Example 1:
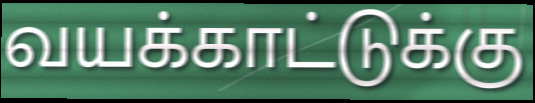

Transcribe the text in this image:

வயக்காட்டுக்கு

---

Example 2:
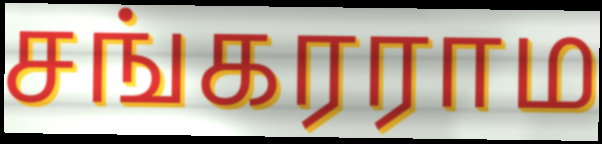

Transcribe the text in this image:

சங்கரராம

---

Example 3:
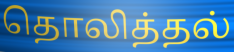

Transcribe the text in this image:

தொலித்தல்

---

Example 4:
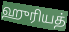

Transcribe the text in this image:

ஹுரியத்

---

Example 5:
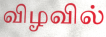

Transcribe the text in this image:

விழவில்